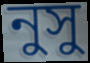
নুসু